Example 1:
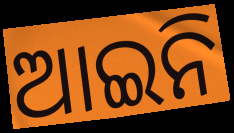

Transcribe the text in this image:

ଆଇନି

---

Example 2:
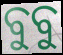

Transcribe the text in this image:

ବୁବୁ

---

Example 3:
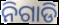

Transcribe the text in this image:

ନିଗାଡି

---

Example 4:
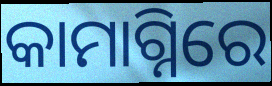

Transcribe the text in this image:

କାମାଗ୍ନିରେ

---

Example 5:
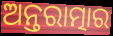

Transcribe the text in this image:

ଅନ୍ତରାତ୍ମାର